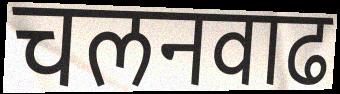
चलनवाढ